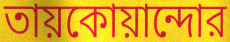
তায়কোয়ান্দোর